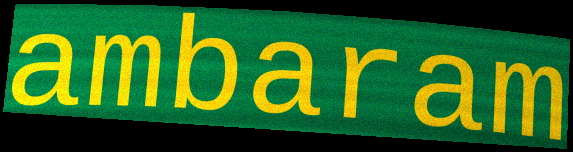
ambaram